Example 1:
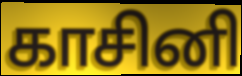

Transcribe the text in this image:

காசினி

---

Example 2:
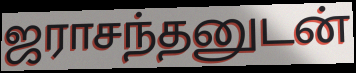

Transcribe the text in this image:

ஜராசந்தனுடன்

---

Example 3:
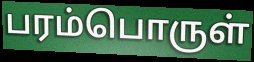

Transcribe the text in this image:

பரம்பொருள்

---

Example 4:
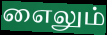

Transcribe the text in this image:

எைலும்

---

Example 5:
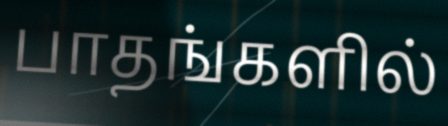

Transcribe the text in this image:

பாதங்களில்